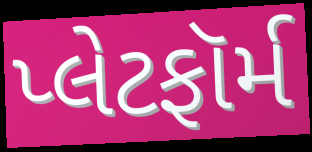
પ્લેટફૉર્મ